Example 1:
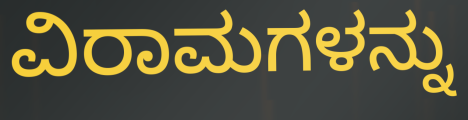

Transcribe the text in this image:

ವಿರಾಮಗಳನ್ನು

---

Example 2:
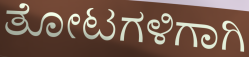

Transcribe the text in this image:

ತೋಟಗಳಿಗಾಗಿ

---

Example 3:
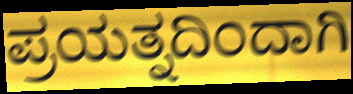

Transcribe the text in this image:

ಪ್ರಯತ್ನದಿಂದಾಗಿ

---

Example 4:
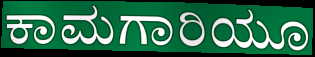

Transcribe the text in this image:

ಕಾಮಗಾರಿಯೂ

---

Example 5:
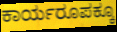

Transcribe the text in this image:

ಕಾರ್ಯರೂಪಕ್ಕೂ